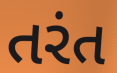
તરંત